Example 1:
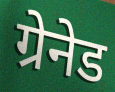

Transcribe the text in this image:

ग्रेनेड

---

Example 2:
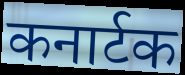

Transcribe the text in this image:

कनार्टक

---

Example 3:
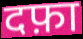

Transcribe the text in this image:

दफ़ा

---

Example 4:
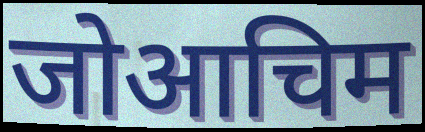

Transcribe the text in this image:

जोआचिम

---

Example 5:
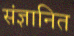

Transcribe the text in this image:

संज्ञानित